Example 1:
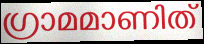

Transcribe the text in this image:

ഗ്രാമമാണിത്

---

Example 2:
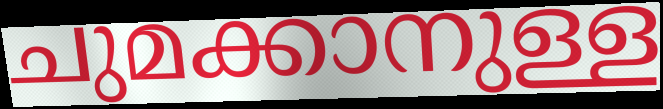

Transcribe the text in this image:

ചുമക്കാനുള്ള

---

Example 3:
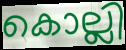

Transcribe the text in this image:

കൊല്ലി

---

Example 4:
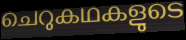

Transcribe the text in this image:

ചെറുകഥകളുടെ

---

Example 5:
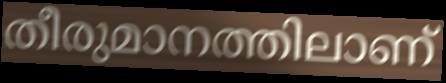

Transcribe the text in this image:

തീരുമാനത്തിലാണ്